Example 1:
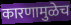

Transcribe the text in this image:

कारणामुळेच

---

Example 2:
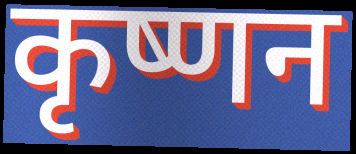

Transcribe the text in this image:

कृष्णन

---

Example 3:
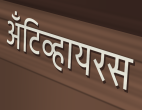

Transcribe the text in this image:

अँटिव्हायरस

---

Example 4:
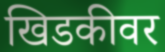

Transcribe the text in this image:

खिडकीवर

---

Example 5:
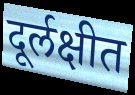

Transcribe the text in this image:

दूर्लक्षीत